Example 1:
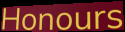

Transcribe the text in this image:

Honours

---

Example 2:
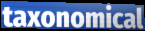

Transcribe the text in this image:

taxonomical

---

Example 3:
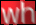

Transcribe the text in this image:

wh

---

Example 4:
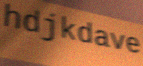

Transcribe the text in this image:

hdjkdave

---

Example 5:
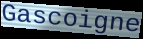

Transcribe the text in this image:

Gascoigne